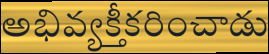
అభివ్యక్తీకరించాడు